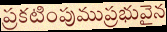
ప్రకటింపుముప్రభువైన